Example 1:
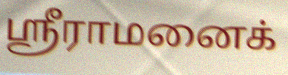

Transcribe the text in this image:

ஸ்ரீராமனைக்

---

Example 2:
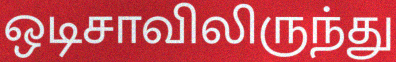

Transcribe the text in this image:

ஒடிசாவிலிருந்து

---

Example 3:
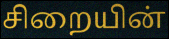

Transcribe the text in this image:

சிறையின்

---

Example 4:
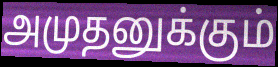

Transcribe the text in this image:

அமுதனுக்கும்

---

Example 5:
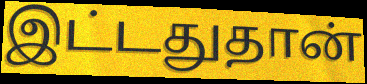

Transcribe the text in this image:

இட்டதுதான்